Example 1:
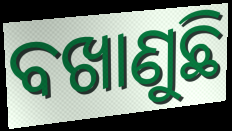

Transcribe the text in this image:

ବଖାଣୁଛି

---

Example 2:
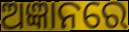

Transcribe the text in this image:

ଅଜ୍ଞାନରେ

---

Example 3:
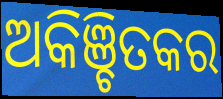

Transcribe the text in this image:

ଅକିଞ୍ଚିତକର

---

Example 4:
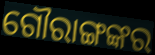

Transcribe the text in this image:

ଗୌରାଙ୍ଗଙ୍କର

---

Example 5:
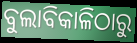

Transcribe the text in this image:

ବୁଲାବିକାଳିଠାରୁ